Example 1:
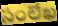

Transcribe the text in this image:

సంలేఖ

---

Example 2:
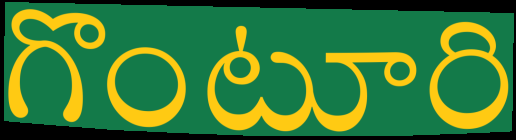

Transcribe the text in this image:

గొంటూరి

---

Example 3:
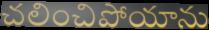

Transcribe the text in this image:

చలించిపోయాను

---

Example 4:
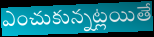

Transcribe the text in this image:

ఎంచుకున్నట్లయితే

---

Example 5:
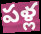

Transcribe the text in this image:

పళ్ల